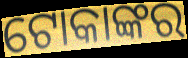
ଟୋକାଙ୍କର